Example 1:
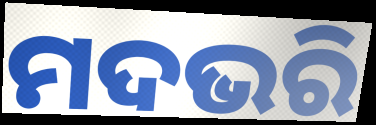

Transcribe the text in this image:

ମଦଭରି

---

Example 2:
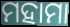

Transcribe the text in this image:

ମହାମା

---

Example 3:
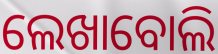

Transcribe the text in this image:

ଲେଖାବୋଲି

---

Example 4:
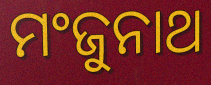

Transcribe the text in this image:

ମଂଜୁନାଥ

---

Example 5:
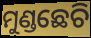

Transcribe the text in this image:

ମୁଣ୍ଡଛେଚି